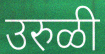
उरुळी